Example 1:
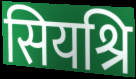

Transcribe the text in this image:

सियश्रि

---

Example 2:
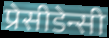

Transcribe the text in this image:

प्रेसीडेन्सी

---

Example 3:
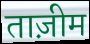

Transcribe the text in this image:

ताज़ीम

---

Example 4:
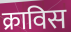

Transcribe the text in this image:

क्राविस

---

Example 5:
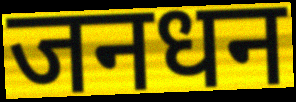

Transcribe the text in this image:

जनधन